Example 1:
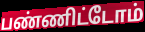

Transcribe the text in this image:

பண்ணிட்டோம்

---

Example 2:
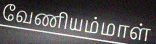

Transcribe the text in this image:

வேணியம்மாள்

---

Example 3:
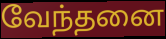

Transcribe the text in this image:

வேந்தனை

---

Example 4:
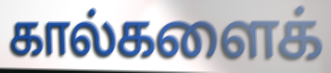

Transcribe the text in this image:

கால்களைக்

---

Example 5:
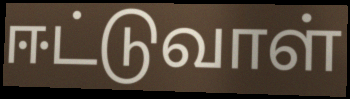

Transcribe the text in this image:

ஈட்டுவாள்